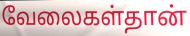
வேலைகள்தான்